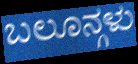
ಬಲೂನ್ಗಳು